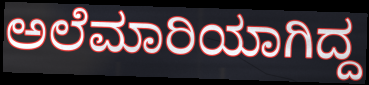
ಅಲೆಮಾರಿಯಾಗಿದ್ದ